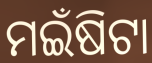
ମଇଁଷିଟା